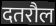
दतरौल